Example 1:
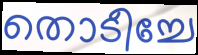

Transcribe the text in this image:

തൊടീച്ചേ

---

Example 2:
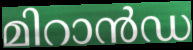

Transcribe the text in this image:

മിറാൻഡ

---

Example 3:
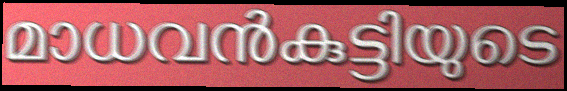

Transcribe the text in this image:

മാധവൻകുട്ടിയുടെ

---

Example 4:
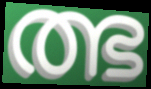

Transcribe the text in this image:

ത്ഭ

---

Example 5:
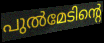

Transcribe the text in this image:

പുൽമേടിന്റെ